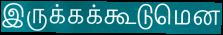
இருக்கக்கூடுமென